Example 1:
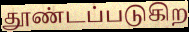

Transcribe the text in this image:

தூண்டப்படுகிற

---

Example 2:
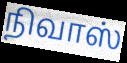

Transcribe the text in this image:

நிவாஸ்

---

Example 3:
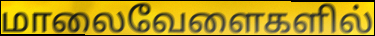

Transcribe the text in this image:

மாலைவேளைகளில்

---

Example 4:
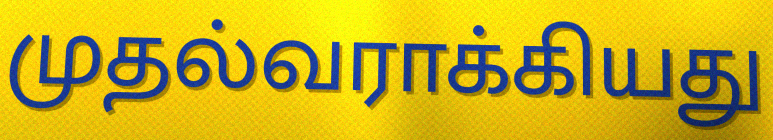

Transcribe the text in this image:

முதல்வராக்கியது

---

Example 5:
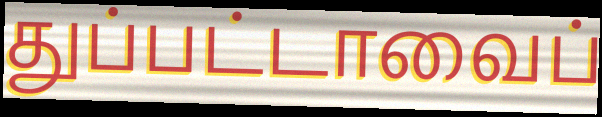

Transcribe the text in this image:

துப்பட்டாவைப்